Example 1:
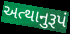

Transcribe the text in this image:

અત્થાનુરૂપં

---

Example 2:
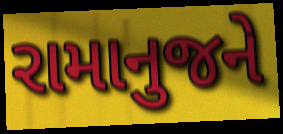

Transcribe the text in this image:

રામાનુજને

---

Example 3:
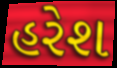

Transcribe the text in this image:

હરેશ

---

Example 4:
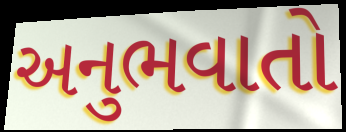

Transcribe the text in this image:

અનુભવાતો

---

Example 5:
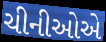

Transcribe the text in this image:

ચીનીઓએ